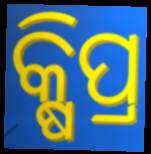
କ୍ଷିପ୍ର